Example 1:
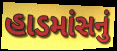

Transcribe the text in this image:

હાડમાંસનું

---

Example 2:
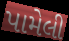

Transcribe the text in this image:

પામેલી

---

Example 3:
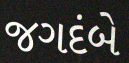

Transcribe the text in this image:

જગદંબે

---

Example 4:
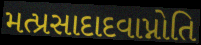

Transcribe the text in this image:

મત્પ્રસાદાદવાપ્નોતિ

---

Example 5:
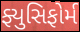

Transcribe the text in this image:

ફ્યુસિફોર્મ